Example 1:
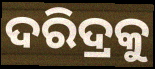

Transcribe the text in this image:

ଦରିଦ୍ରକୁ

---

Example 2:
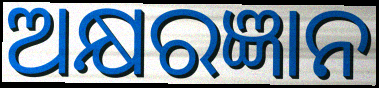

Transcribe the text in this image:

ଅକ୍ଷରଜ୍ଞାନ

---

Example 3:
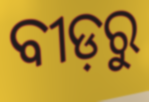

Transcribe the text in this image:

ବୀଡ଼ରୁ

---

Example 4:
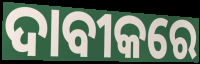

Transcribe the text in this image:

ଦାବୀକରେ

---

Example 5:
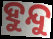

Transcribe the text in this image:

ହୁନ୍ଦୁ